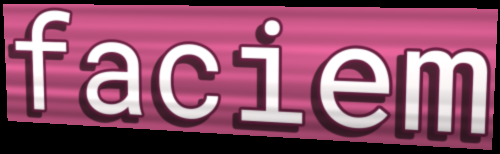
faciem